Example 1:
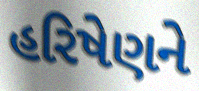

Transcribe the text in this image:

હરિષેણને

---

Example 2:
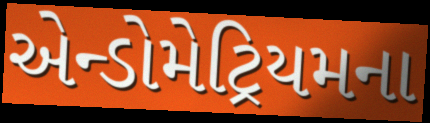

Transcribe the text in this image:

એન્ડોમેટ્રિયમના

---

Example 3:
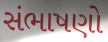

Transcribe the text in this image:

સંભાષણો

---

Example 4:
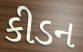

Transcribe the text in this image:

કીડન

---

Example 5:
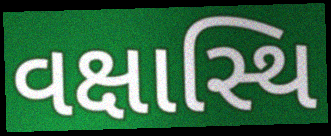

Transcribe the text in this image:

વક્ષાસ્થિ